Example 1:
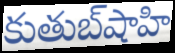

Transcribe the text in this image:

కుతుబ్‌షాహి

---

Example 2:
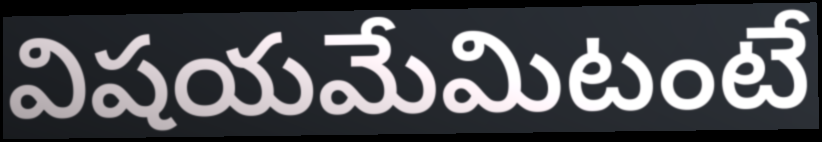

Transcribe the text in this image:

విషయమేమిటంటే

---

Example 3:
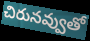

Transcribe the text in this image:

చిరునవ్వుతో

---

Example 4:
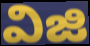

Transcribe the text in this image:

విజి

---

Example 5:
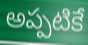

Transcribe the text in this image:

అప్పటికే